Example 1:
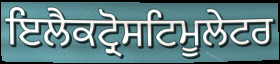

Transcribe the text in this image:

ਇਲੈਕਟ੍ਰੋਸਟਿਮੂਲੇਟਰ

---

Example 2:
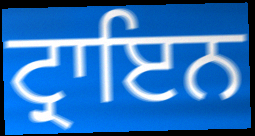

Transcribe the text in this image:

ਟ੍ਰਾਇਨ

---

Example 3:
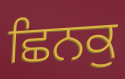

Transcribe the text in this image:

ਛਿਨਕੁ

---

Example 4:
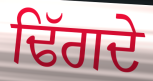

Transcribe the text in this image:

ਢਿੱਗਦੇ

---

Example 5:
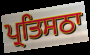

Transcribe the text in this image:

ਪ੍ਰਤਿਸਠਾ